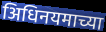
अिधिनयमाच्या